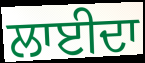
ਲਾਈਦਾ